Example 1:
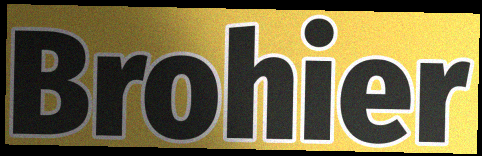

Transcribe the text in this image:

Brohier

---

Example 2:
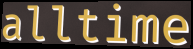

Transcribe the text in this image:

alltime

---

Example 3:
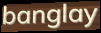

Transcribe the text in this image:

banglay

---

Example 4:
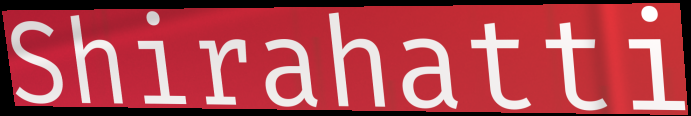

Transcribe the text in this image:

Shirahatti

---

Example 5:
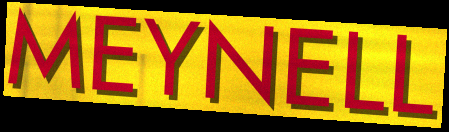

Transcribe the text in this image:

MEYNELL